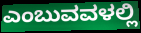
ಎಂಬುವವಳಲ್ಲಿ